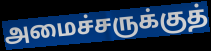
அமைச்சருக்குத்